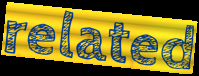
related